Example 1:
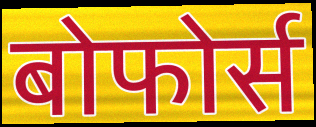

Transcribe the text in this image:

बोफोर्स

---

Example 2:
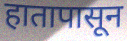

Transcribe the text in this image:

हातापासून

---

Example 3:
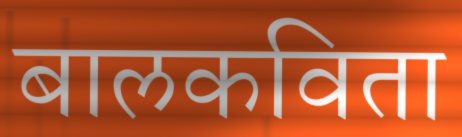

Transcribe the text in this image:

बालकविता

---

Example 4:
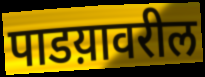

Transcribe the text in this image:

पाडय़ावरील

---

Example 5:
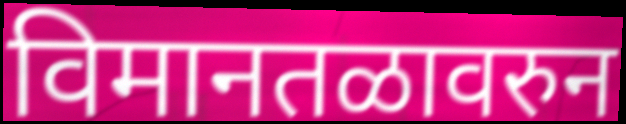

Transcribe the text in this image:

विमानतळावरुन